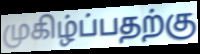
முகிழ்ப்பதற்கு